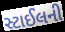
સ્ટાઈલની